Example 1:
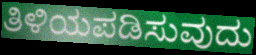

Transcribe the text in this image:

ತಿಳಿಯಪಡಿಸುವುದು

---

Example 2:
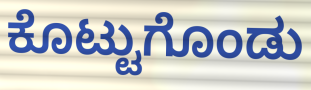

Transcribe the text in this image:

ಕೊಟ್ಟುಗೊಂಡು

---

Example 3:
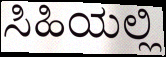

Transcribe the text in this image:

ಸಿಹಿಯಲ್ಲಿ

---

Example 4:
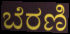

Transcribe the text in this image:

ಬೆರಣಿ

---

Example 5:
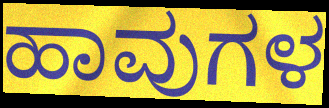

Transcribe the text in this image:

ಹಾವುಗಳ